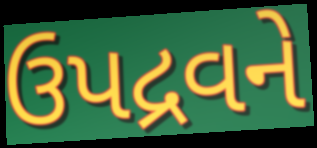
ઉપદ્રવને